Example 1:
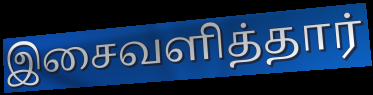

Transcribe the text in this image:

இசைவளித்தார்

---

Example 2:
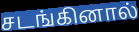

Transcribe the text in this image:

சடங்கினால்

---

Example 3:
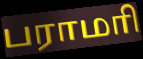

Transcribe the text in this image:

பராமரி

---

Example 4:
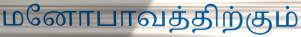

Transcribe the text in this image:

மனோபாவத்திற்கும்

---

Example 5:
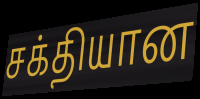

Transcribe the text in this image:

சக்தியான